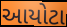
આયોટા